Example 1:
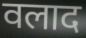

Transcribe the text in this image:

वलाद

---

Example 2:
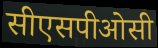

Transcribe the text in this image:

सीएसपीओसी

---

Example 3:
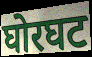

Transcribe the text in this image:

घोरघट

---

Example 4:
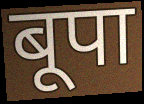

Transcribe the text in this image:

बूपा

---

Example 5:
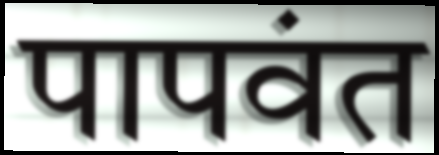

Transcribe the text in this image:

पापवंत